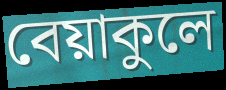
বেয়াকুলে